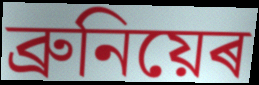
ব্ৰুনিয়েৰ